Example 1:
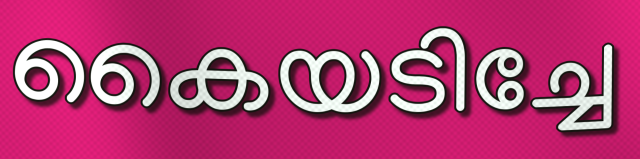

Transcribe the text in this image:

കൈയടിച്ചേ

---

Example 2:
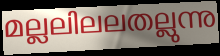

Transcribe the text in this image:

മല്ലലിലലതല്ലുന്നു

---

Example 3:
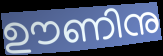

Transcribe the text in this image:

ഊണിനു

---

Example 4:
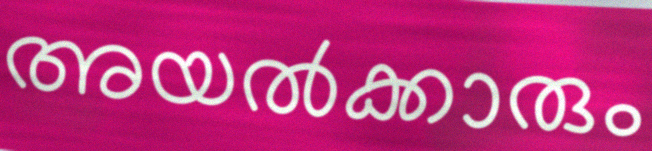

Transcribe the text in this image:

അയൽക്കാരും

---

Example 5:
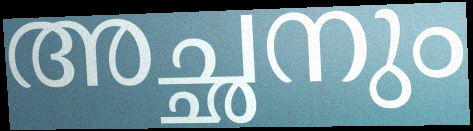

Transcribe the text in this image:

അച്ഛനും